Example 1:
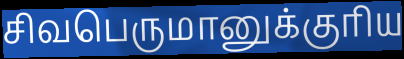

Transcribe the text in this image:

சிவபெருமானுக்குரிய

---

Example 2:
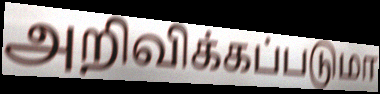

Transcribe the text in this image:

அறிவிக்கப்படுமா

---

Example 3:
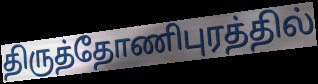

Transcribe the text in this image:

திருத்தோணிபுரத்தில்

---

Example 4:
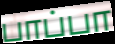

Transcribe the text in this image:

பாப்பா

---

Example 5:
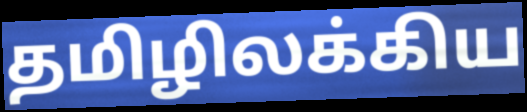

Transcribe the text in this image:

தமிழிலக்கிய